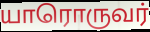
யாரொருவர்